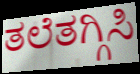
ತಲೆತಗ್ಗಿಸಿ